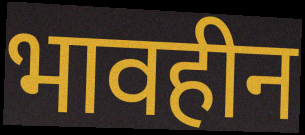
भावहीन